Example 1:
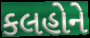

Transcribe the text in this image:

કલહોને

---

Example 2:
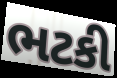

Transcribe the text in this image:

ભટકી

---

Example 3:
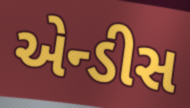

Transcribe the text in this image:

એન્ડીસ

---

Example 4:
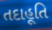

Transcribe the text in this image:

તદાહૂતિ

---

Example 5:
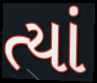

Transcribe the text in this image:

ત્‍યાં